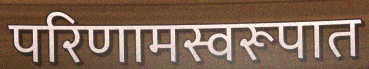
परिणामस्वरूपात